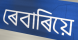
ৰেবাৰিয়ে